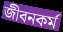
জীবনকর্ম